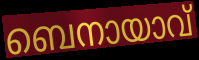
ബെനായാവ്